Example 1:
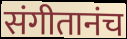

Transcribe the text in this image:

संगीतानंच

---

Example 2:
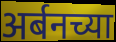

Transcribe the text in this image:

अर्बनच्या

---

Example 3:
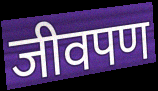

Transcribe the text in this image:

जीवपण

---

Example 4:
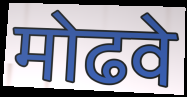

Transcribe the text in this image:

मोढवे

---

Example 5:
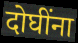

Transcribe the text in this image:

दोघींना